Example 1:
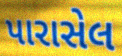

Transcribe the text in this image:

પારાસેલ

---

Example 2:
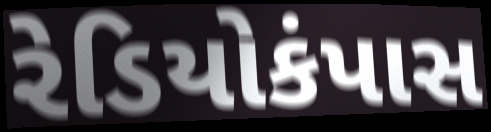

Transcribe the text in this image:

રેડિયોકંપાસ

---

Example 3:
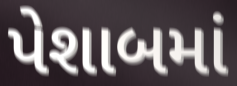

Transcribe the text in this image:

પેશાબમાં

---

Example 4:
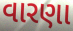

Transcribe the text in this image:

વારણા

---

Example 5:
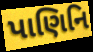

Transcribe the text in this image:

પાણિનિ